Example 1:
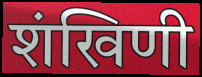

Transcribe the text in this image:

शंखिणी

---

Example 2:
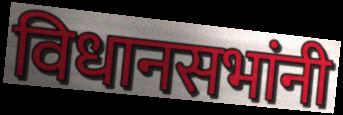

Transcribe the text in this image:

विधानसभांनी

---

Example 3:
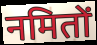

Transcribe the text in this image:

नमितों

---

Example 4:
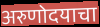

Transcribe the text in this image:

अरुणोदयाचा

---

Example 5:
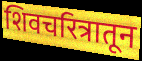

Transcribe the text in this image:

शिवचरित्रातून